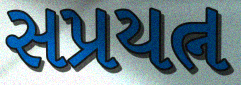
સપ્રયત્ન